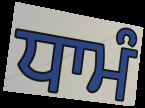
ਧਾਮੰ